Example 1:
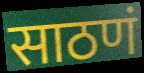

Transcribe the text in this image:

साठणं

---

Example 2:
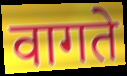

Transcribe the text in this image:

वागते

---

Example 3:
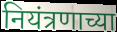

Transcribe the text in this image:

नियंत्रणाच्या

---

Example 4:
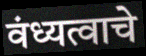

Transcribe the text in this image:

वंध्यत्वाचे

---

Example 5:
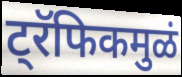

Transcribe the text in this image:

ट्रॅफिकमुळं